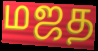
மஜத